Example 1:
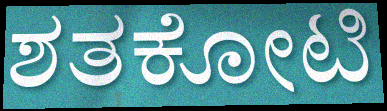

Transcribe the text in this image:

ಶತಕೋಟಿ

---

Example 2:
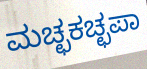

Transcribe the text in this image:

ಮಚ್ಛಕಚ್ಛಪಾ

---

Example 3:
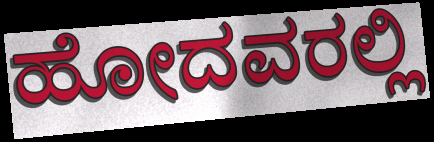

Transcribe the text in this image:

ಹೋದವರಲ್ಲಿ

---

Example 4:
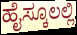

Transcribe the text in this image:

ಹೈಸ್ಕೂಲಲ್ಲಿ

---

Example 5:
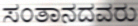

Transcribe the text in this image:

ಸಂತಾನದವರು